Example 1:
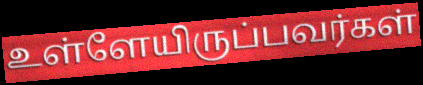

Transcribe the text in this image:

உள்ளேயிருப்பவர்கள்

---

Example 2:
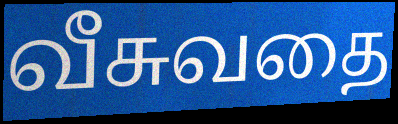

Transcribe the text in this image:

வீசுவதை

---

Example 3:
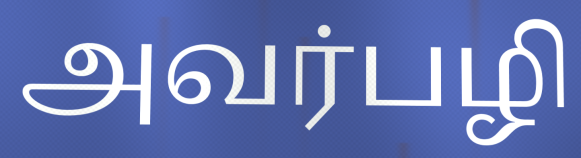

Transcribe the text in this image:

அவர்பழி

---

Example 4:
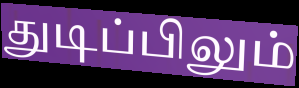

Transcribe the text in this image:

துடிப்பிலும்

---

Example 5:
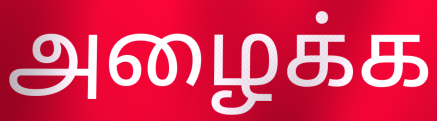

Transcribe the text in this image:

அழைக்க